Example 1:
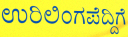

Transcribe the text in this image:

ಉರಿಲಿಂಗಪೆದ್ದಿಗೆ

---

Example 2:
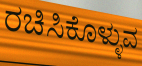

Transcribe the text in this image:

ರಚಿಸಿಕೊಳ್ಳುವ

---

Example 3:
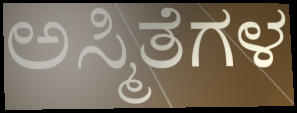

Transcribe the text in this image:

ಅಸ್ಮಿತೆಗಳ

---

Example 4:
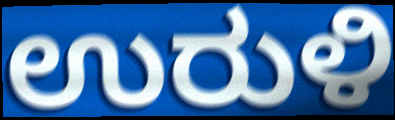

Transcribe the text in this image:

ಉರುಳಿ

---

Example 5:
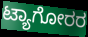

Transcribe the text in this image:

ಟ್ಯಾಗೋರರ